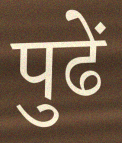
पुढें